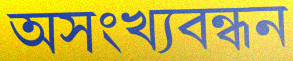
অসংখ্যবন্ধন